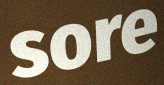
sore